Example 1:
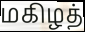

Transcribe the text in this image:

மகிழத்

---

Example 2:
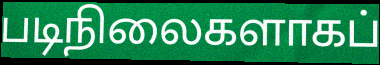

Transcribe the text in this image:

படிநிலைகளாகப்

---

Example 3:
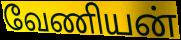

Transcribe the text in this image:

வேணியன்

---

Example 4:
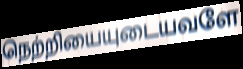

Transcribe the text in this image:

நெற்றியையுடையவளே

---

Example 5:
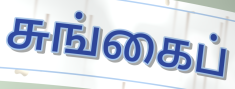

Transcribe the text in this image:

சுங்கைப்